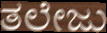
ತಲೇಜು